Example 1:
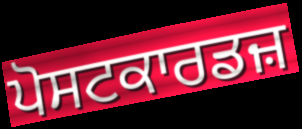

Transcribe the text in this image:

ਪੋਸਟਕਾਰਡਜ਼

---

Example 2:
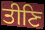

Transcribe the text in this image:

ਤੀਣਿ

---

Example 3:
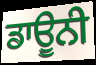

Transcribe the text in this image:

ਡਾਊਨੀ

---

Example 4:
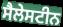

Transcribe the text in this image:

ਸੈਲੇਸਟੀਨ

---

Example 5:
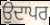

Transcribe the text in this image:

ਉਦਾਪਰ